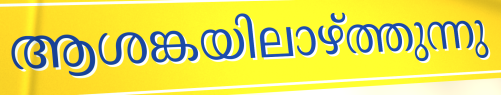
ആശങ്കയിലാഴ്ത്തുന്നു